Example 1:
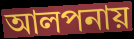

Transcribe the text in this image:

আলপনায়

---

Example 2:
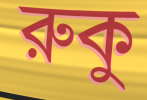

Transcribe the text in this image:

রুকু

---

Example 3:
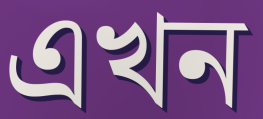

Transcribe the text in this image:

এখন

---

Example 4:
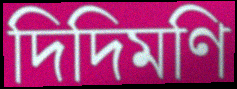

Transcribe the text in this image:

দিদিমণি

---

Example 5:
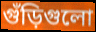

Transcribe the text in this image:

গুঁড়িগুলো